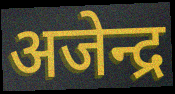
अजेन्द्र